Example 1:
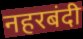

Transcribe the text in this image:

नहरबंदी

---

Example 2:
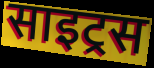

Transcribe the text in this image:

साइट्रस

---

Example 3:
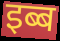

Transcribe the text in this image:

इब्ब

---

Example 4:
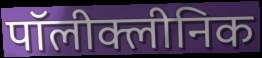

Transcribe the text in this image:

पॉलीक्लीनिक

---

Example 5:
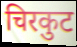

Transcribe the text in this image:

चिरकुट